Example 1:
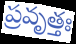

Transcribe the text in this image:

ప్రవృత్తః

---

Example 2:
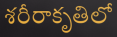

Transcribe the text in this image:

శరీరాకృతిలో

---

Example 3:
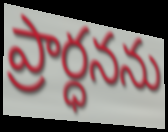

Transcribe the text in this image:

ప్రార్ధనను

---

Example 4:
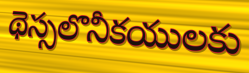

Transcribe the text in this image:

థెస్సలొనీకయులకు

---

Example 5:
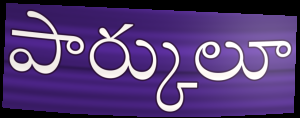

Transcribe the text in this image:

పార్కులూ